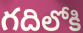
గదిలోకి